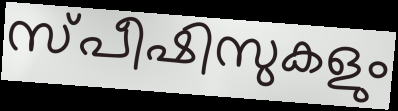
സ്പീഷിസുകളും